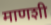
माणशी